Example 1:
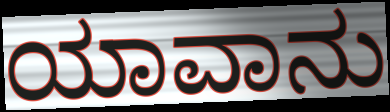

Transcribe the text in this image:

ಯಾವಾನು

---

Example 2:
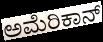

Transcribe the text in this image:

ಅಮೆರಿಕಾನ್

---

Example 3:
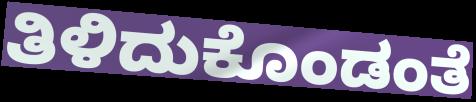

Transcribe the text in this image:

ತಿಳಿದುಕೊಂಡಂತೆ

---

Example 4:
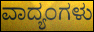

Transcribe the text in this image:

ವಾದ್ಯಂಗಳು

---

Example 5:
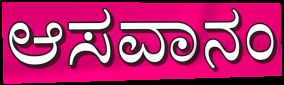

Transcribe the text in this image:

ಆಸವಾನಂ